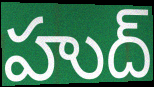
హుద్